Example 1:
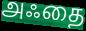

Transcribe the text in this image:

அஃதை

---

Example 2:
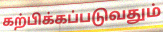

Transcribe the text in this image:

கற்பிக்கப்படுவதும்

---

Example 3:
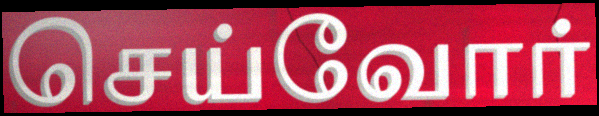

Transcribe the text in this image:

செய்வோர்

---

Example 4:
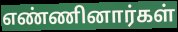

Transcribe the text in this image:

எண்ணினார்கள்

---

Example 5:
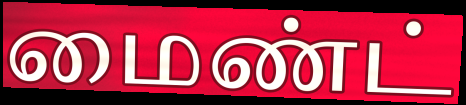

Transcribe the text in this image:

மைண்ட்